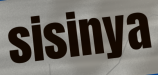
sisinya